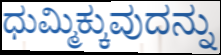
ಧುಮ್ಮಿಕ್ಕುವುದನ್ನು